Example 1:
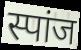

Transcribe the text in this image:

स्पांज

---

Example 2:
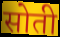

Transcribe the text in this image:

सोती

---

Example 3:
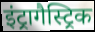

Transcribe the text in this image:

इंट्रागैस्ट्रिक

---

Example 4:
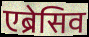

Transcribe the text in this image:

एब्रेसिव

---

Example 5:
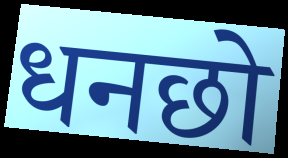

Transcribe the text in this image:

धनछो